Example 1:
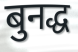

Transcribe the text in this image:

बुनद्ध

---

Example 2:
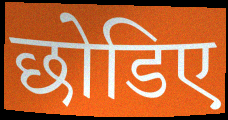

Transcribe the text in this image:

छोडिए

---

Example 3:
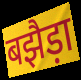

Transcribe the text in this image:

बझैड़ा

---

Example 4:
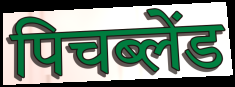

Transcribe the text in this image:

पिचब्लेंड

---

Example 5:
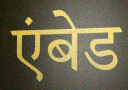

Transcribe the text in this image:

एंबेड